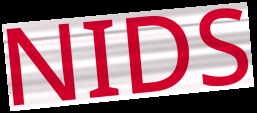
NIDS